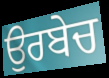
ਉਰਬੇਚ